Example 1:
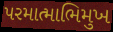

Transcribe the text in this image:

પરમાત્માભિમુખ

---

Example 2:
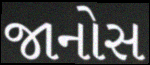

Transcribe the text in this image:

જાનોસ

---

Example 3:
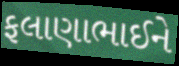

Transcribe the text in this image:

ફલાણાભાઈને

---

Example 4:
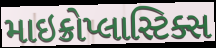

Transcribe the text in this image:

માઇક્રોપ્લાસ્ટિક્સ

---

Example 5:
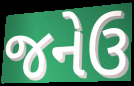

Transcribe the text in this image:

જનેઉ